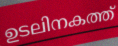
ഉടലിനകത്ത്